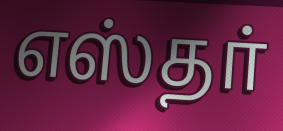
எஸ்தர்